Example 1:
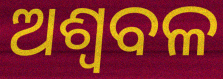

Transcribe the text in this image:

ଅଶ୍ୱବଳ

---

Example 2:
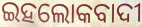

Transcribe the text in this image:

ଇହଲୋକବାଦୀ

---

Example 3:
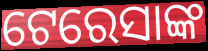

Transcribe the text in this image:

ଟେରେସାଙ୍କ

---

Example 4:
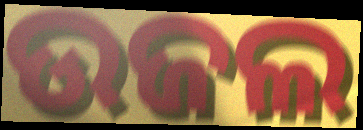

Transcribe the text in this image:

ଉଜଲ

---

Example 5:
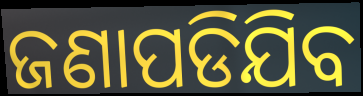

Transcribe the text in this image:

ଜଣାପଡିଯିବ